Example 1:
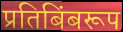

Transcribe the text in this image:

प्रतिबिंबरूप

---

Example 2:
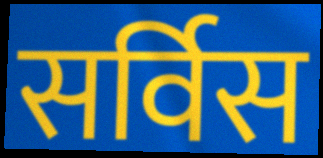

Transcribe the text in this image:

सर्विस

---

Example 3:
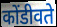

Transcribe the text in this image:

कोंडीवते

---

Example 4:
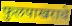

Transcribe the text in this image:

फुलपाखराचे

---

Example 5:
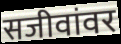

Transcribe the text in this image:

सजीवांवर